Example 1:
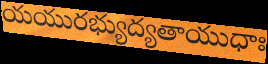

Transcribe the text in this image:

యయురభ్యుద్యతాయుధాః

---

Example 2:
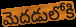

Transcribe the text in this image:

మెదడులోకి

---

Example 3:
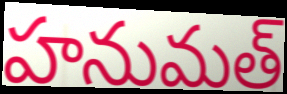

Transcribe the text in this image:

హనుమత్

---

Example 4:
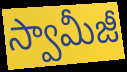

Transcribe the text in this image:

స్వామీజీ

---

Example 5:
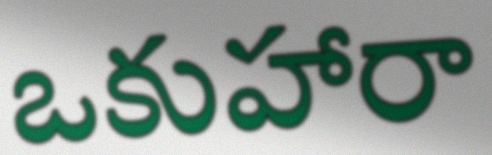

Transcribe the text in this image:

ఒకుహారా